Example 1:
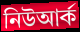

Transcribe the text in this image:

নিউআর্ক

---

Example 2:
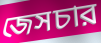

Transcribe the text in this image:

জেসচার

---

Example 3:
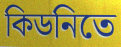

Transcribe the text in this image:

কিডনিতে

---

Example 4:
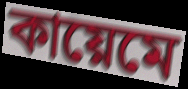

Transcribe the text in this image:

কায়েমে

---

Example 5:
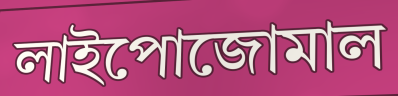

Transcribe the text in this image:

লাইপোজোমাল